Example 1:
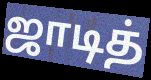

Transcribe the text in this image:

ஜாடித்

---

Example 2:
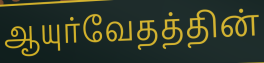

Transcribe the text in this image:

ஆயுர்வேதத்தின்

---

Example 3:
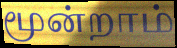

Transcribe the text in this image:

மூன்றாம்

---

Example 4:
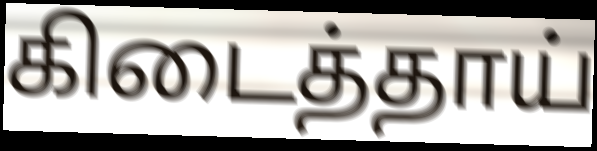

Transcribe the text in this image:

கிடைத்தாய்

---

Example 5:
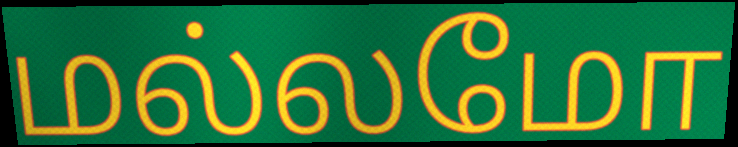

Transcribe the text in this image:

மல்லமோ